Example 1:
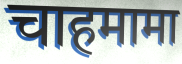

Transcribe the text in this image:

चाहमामा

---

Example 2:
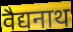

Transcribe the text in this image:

वैद्यनाथ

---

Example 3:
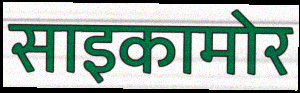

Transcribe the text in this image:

साइकामोर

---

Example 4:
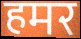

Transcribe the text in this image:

हमर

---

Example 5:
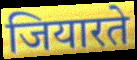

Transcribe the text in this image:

जियारते